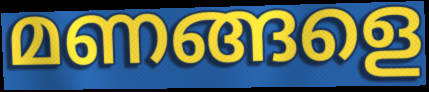
മണങ്ങളെ